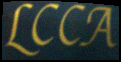
LCCA